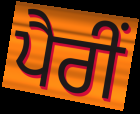
ਪੈਰੀਂ